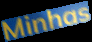
Minhas